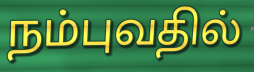
நம்புவதில்